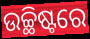
ଉଚ୍ଛିଷ୍ଟରେ